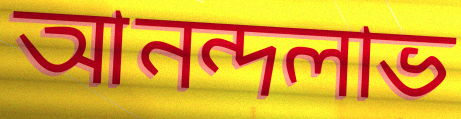
আনন্দলাভ